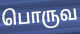
பொருவ